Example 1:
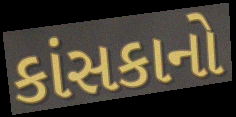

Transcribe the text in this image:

કાંસકાનો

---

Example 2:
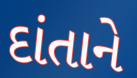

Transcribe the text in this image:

દાંતાને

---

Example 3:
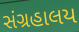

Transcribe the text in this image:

સંગ્રહાલય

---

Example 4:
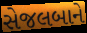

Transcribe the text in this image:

સેજલબાને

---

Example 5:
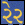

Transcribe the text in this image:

રેર